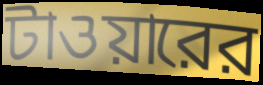
টাওয়ারের